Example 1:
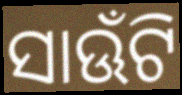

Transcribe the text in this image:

ସାଊଁଟି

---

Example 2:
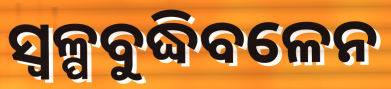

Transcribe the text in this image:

ସ୍ଵଳ୍ପବୁଦ୍ଧିବଳେନ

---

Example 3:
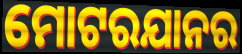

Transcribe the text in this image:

ମୋଟରଯାନର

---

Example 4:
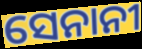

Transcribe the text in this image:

ସେନାନୀ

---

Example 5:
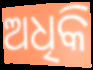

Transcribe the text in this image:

ଅଧିକି